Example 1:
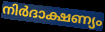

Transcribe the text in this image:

നിർദാക്ഷണ്യം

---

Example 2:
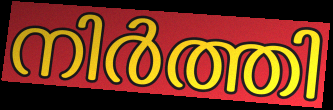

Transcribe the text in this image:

നിർത്തി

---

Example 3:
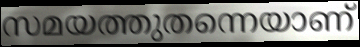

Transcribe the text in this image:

സമയത്തുതന്നെയാണ്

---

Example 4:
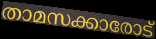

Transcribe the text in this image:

താമസക്കാരോട്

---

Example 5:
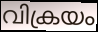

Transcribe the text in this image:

വിക്രയം